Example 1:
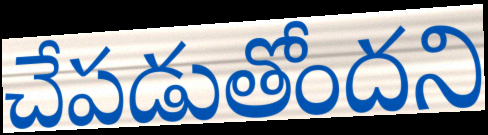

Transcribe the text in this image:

చేపడుతోందని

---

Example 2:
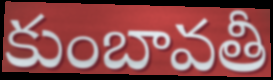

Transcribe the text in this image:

కుంబావతీ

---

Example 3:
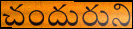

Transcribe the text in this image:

చందురుని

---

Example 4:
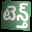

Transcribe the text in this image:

టెన్త్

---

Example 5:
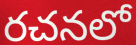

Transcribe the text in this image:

రచనలో